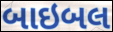
બાઇબલ